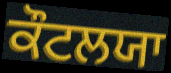
ਕੌਟਲਯਾ